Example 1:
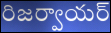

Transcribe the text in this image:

రిజర్వాయర్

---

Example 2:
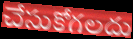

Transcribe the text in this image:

చేసుకోగలదు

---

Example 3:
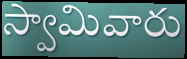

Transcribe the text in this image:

స్వామివారు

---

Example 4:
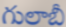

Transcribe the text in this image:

గులాబీ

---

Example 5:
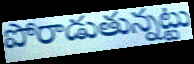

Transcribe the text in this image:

పోరాడుతున్నట్టు